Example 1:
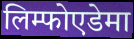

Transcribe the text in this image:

लिम्फोएडेमा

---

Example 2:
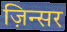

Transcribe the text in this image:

ज़िन्सर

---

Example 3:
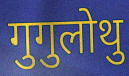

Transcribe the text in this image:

गुगुलोथु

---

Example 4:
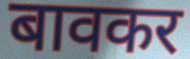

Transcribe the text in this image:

बावकर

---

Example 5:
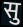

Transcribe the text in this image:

सु